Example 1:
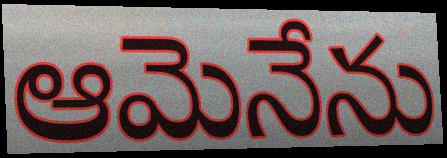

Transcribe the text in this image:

ఆమెనేను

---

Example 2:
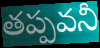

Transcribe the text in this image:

తప్పవనీ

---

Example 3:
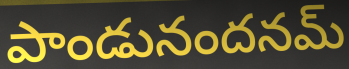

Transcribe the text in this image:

పాండునందనమ్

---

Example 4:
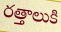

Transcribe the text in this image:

రత్తాలుకి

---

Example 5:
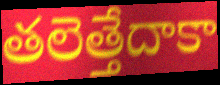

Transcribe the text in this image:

తలెత్తేదాకా